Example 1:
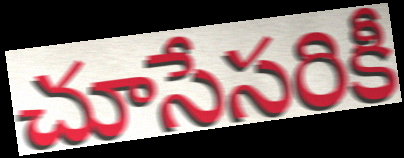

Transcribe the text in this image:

చూసేసరికీ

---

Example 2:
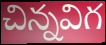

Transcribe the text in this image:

చిన్నవిగ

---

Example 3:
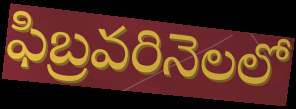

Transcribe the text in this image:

ఫిబ్రవరినెలలో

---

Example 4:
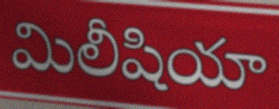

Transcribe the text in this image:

మిలీషియా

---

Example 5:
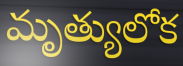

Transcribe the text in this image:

మృత్యులోక